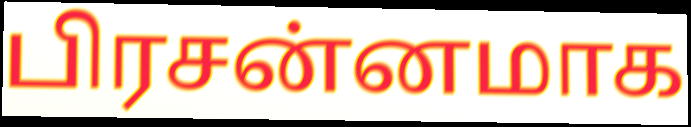
பிரசன்னமாக